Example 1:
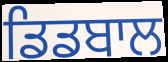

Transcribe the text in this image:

ਡਿਡਬਾਲ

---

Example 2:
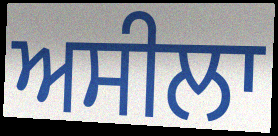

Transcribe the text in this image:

ਅਸੀਲਾ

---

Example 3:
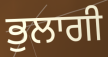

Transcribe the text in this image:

ਭੁਲਾਗੀ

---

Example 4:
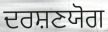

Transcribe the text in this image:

ਦਰਸ਼ਣਯੋਗ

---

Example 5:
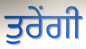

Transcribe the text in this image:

ਤੁਰੇਂਗੀ